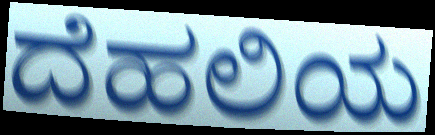
ದೆಹಲಿಯ